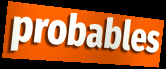
probables